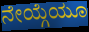
ನೇಯ್ಗೆಯೂ